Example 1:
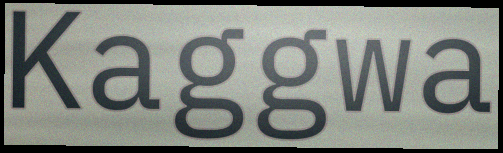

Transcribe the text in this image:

Kaggwa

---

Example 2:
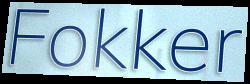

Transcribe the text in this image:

Fokker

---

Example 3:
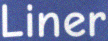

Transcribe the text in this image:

Liner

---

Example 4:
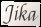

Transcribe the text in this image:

Jika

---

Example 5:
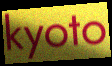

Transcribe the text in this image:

kyoto